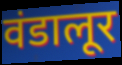
वंडालूर